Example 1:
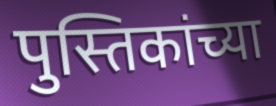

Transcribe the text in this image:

पुस्तिकांच्या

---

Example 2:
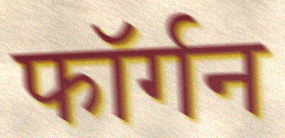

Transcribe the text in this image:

फॉर्गन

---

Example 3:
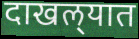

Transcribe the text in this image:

दाखल्यात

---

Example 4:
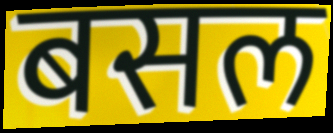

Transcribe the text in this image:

बसल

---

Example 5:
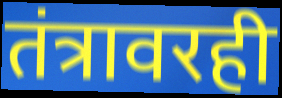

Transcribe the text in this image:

तंत्रावरही